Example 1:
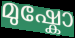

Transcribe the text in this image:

മുഷ്കോ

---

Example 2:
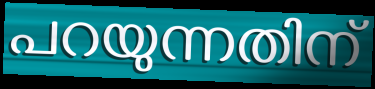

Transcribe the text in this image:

പറയുന്നതിന്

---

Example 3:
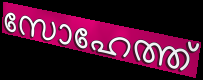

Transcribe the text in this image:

സോഹേത്ത്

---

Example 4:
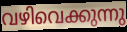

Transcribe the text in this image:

വഴിവെക്കുന്നു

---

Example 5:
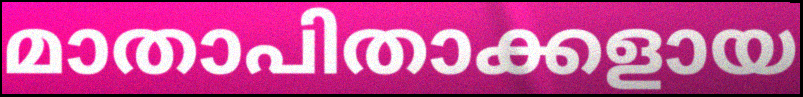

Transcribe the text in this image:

മാതാപിതാക്കളായ